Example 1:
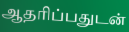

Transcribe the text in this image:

ஆதரிப்பதுடன்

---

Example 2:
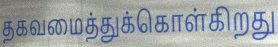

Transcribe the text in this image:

தகவமைத்துக்கொள்கிறது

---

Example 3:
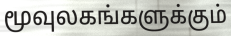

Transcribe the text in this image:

மூவுலகங்களுக்கும்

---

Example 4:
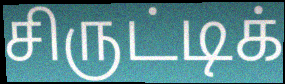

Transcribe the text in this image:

சிருட்டிக்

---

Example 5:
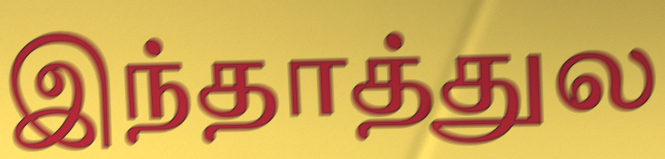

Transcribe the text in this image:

இந்தாத்துல